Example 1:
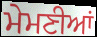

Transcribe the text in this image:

ਮੇਮਣੀਆਂ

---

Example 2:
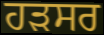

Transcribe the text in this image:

ਹੜਸਰ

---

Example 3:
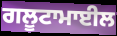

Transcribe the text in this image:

ਗਲੂਟਾਮਾਈਲ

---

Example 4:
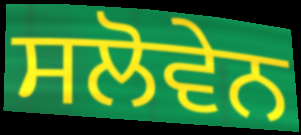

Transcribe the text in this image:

ਸਲੋਵੇਨ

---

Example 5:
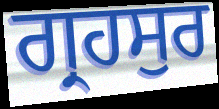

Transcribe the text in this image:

ਗ੍ਰਹਸੁਰ